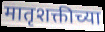
मातृशक्तीच्या